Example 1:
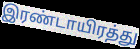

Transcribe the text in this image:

இரண்டாயிரத்து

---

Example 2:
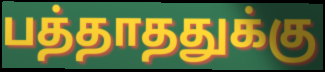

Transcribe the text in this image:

பத்தாததுக்கு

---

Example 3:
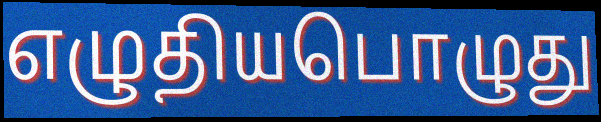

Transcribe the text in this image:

எழுதியபொழுது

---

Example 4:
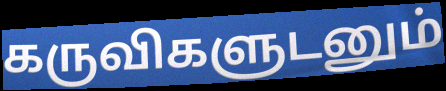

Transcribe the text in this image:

கருவிகளுடனும்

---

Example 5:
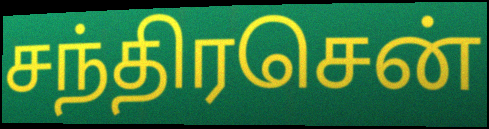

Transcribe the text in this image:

சந்திரசென்